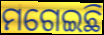
ମଗେଇଛି